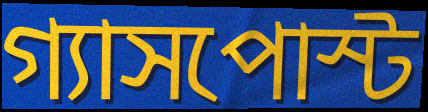
গ্যাসপোস্ট